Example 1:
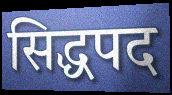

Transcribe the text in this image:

सिद्धपद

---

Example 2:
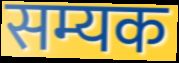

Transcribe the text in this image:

सम्यक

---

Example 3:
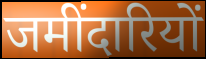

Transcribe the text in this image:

जमींदारियों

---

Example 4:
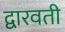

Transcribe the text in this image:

द्वारवती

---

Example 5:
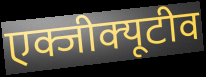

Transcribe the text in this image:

एक्जीक्यूटीव